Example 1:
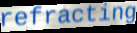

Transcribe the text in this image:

refracting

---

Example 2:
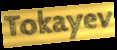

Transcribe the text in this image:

Tokayev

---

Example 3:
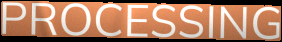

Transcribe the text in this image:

PROCESSING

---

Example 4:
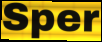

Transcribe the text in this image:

Sper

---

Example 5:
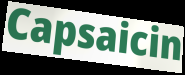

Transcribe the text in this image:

Capsaicin